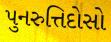
પુનરુત્તિદોસો